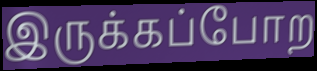
இருக்கப்போற